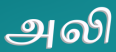
அலி